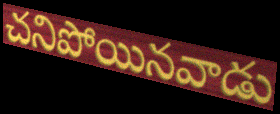
చనిపోయినవాడు